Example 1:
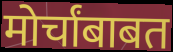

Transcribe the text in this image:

मोर्चांबाबत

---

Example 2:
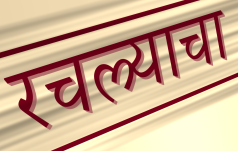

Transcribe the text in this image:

रचल्याचा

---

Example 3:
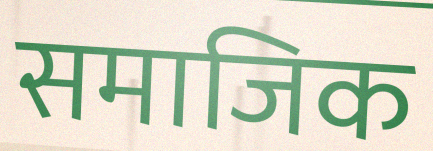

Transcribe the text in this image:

समाजिक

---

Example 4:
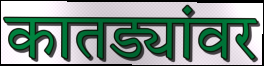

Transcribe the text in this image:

कातड्यांवर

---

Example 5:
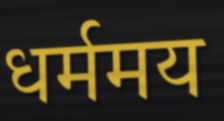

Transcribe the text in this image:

धर्ममय